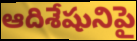
ఆదిశేషునిపై